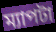
ম্যাপটা